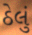
ઠેલું